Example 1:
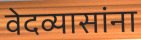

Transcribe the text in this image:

वेदव्यासांना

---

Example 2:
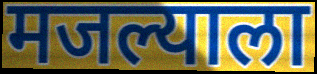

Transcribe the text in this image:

मजल्याला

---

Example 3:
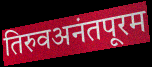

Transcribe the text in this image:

तिरुवअनंतपूरम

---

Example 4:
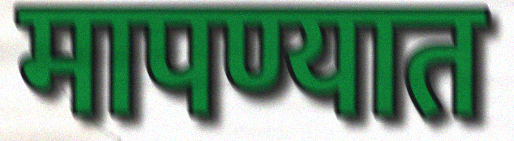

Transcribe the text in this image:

मापण्यात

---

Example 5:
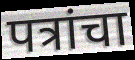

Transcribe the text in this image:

पत्रांचा